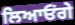
ਲਿਆਓਂਗੇ